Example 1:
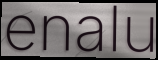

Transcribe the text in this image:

enalu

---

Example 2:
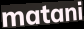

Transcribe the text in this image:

matani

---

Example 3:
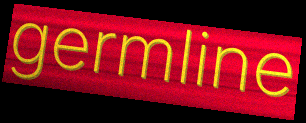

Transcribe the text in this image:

germline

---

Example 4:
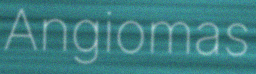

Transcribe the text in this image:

Angiomas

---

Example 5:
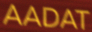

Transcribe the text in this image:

AADAT